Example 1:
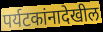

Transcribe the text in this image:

पर्यटकांनादेखील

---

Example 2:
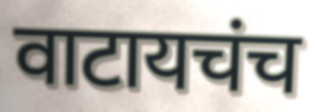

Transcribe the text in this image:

वाटायचंच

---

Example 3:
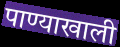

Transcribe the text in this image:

पाण्याखाली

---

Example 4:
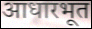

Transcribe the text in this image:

आधारभूत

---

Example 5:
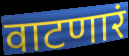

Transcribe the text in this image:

वाटणारं